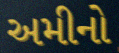
અમીનો